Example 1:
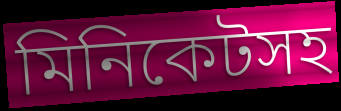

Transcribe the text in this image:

মিনিকেটসহ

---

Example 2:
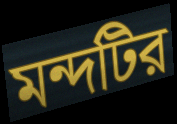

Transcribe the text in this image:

মন্দটির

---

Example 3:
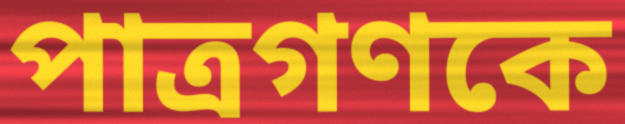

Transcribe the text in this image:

পাত্রগণকে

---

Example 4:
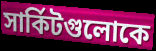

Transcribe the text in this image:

সার্কিটগুলোকে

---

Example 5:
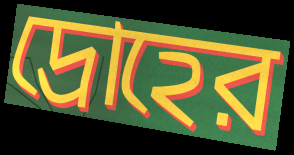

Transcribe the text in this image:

দ্রোহের